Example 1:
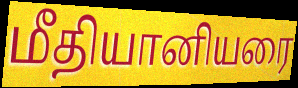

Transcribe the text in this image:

மீதியானியரை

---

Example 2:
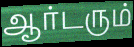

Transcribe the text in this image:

ஆர்டரும்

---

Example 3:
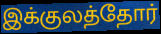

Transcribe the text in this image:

இக்குலத்தோர்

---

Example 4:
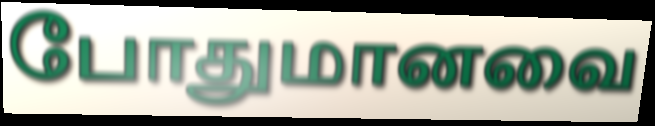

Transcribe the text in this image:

போதுமானவை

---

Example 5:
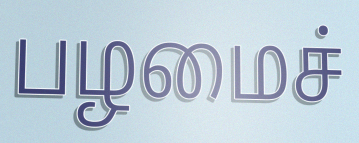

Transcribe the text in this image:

பழமைச்